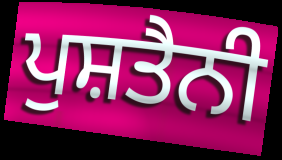
ਪੁਸ਼ਤੈਨੀ